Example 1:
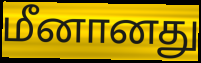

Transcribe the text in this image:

மீனானது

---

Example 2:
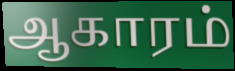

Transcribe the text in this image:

ஆகாரம்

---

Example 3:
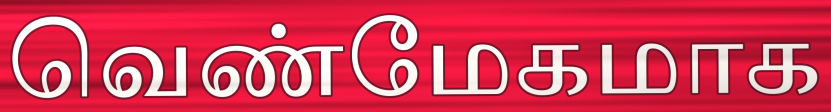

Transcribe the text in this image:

வெண்மேகமாக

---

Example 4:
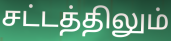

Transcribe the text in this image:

சட்டத்திலும்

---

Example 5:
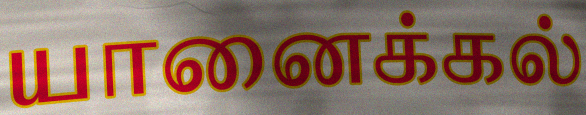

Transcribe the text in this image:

யானைக்கல்